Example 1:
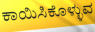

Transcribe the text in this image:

ಕಾಯಿಸಿಕೊಳ್ಳುವ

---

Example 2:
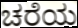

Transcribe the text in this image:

ಚರೆಯ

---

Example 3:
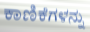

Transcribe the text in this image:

ಕಾಣಿಕೆಗಳನ್ನು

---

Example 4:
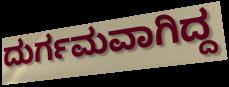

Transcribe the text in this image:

ದುರ್ಗಮವಾಗಿದ್ದ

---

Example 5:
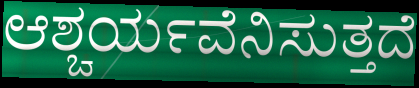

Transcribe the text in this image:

ಆಶ್ಚರ್ಯವೆನಿಸುತ್ತದೆ